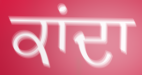
ਕਾਂਦਾ